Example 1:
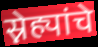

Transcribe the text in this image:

स्नेह्यांचे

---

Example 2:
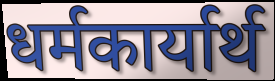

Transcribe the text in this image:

धर्मकार्यार्थ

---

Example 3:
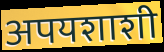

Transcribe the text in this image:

अपयशाशी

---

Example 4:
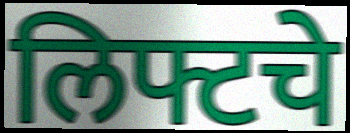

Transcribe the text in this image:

लिफ्टचे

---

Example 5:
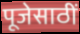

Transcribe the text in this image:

पूजेसाठीं